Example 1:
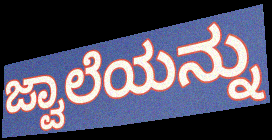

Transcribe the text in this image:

ಜ್ವಾಲೆಯನ್ನು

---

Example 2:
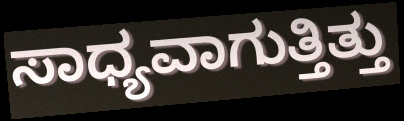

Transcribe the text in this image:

ಸಾಧ್ಯವಾಗುತ್ತಿತ್ತು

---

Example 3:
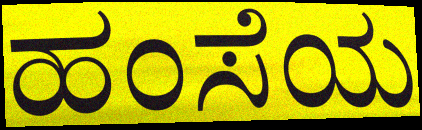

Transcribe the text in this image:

ಹಂಸೆಯ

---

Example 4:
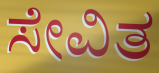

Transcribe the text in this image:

ಸೇವಿತ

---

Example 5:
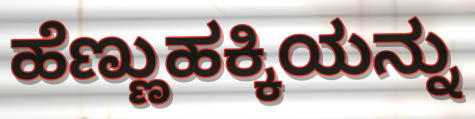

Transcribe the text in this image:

ಹೆಣ್ಣುಹಕ್ಕಿಯನ್ನು